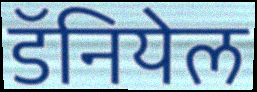
डॅनियेल